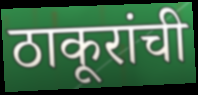
ठाकूरांची